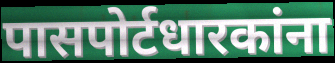
पासपोर्टधारकांना